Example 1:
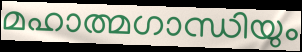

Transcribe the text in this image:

മഹാത്മഗാന്ധിയും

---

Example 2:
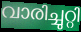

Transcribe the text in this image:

വാരിച്ചുറ്റി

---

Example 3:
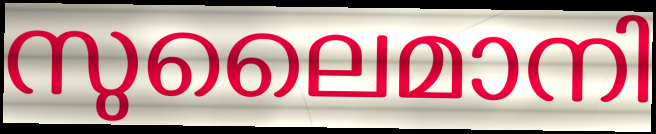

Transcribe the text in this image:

സുലൈമാനി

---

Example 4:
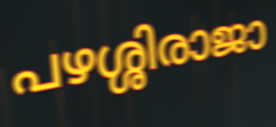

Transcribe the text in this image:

പഴശ്ശിരാജാ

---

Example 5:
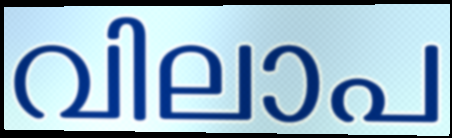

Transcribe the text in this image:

വിലാപ